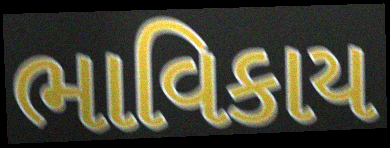
ભાવિકાય